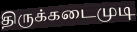
திருக்கடைமுடி